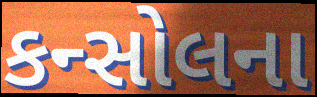
કન્સોલના